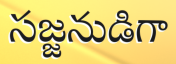
సజ్జనుడిగా